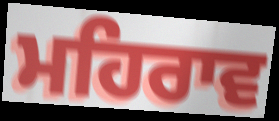
ਮਹਿਰਾਵ